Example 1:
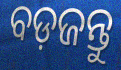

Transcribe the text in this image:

ବଡ଼ଜନ୍ତୁ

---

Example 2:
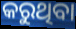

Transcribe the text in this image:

କରୁଥିବା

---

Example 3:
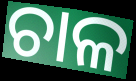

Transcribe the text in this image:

ଚାଳ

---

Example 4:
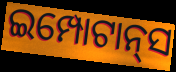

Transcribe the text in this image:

ଇମ୍ପୋଟାନ୍‌ସ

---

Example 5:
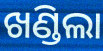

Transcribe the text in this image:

ଖଣ୍ଡିଲା